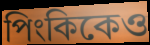
পিংকিকেও